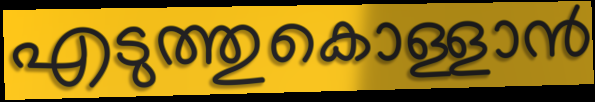
എടുത്തുകൊള്ളാൻ